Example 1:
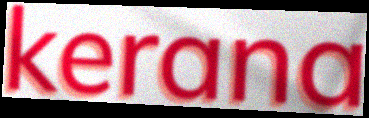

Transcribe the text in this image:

kerana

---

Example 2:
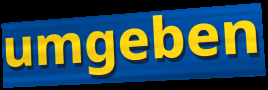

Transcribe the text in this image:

umgeben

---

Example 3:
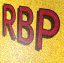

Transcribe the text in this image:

RBP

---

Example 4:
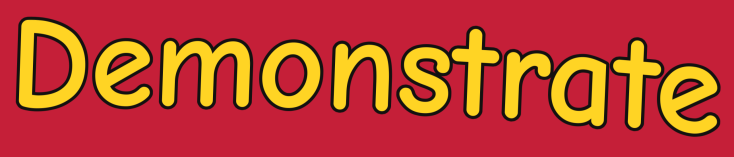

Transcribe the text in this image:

Demonstrate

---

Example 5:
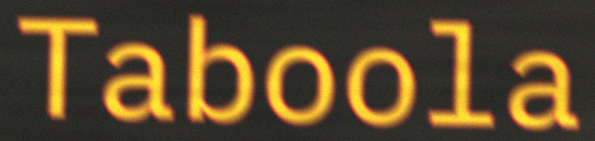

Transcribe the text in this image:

Taboola